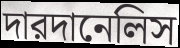
দারদানেলিস